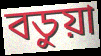
বডুয়া